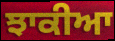
ਝਾਕੀਆ